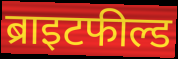
ब्राइटफील्ड